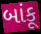
બાંકૂ